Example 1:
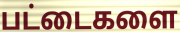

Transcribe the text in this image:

பட்டைகளை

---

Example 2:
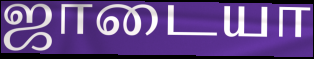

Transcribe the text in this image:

ஜாடையா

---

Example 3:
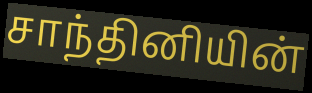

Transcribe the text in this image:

சாந்தினியின்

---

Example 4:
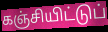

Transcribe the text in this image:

கஞ்சியிட்டுப்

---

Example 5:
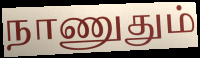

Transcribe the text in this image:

நாணுதும்